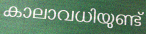
കാലാവധിയുണ്ട്